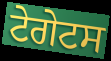
ਟੇਗੇਟਸ